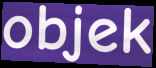
objek